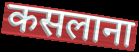
कसलाना